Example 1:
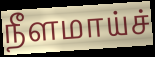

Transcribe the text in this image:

நீளமாய்ச்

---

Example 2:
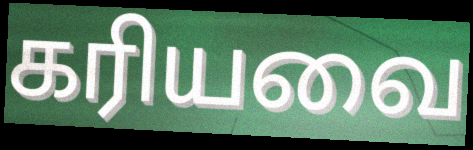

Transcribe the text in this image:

கரியவை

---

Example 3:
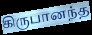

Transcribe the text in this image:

கிருபானந்த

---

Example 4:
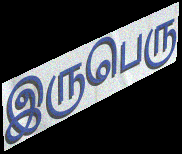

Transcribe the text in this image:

இருபெரு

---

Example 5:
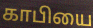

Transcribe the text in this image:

காபியை